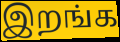
இறங்க